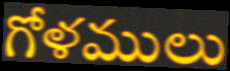
గోళములు